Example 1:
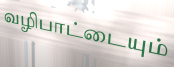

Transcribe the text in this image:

வழிபாட்டையும்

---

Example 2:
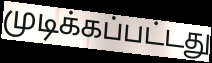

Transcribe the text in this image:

முடிக்கப்பட்டது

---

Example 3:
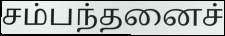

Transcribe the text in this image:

சம்பந்தனைச்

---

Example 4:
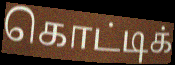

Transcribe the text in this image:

கொட்டிக்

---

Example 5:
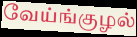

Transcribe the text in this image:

வேய்ங்குழல்